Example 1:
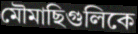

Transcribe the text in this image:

মৌমাছিগুলিকে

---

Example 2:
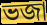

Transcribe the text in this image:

ভজা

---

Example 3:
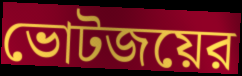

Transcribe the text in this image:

ভোটজয়ের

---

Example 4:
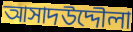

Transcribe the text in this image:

আসাদউদ্দৌলা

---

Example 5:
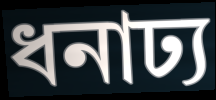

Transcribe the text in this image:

ধনাঢ্য